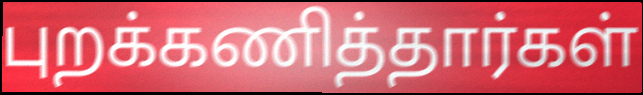
புறக்கணித்தார்கள்